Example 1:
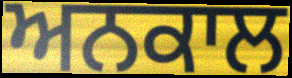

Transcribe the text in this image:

ਅਨਕਾਲ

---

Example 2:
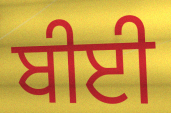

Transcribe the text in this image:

ਬੀਈ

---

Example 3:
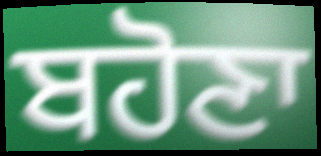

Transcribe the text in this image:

ਬਹੋਣਾ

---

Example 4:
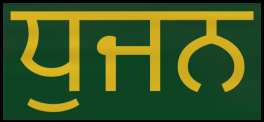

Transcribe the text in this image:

ਧੁਜਨ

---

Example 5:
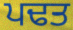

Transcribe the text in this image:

ਪਢਤ